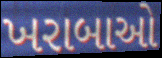
ખરાબાઓ